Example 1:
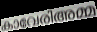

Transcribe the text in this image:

കാവേരിഅമ്മ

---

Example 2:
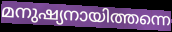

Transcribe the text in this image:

മനുഷ്യനായിത്തന്നെ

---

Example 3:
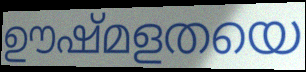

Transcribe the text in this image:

ഊഷ്മളതയെ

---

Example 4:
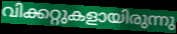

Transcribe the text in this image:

വിക്കറ്റുകളായിരുന്നു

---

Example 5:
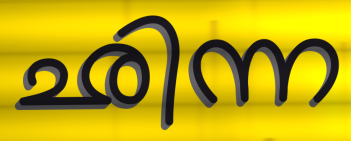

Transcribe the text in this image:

ഛിന്ന